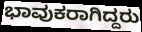
ಭಾವುಕರಾಗಿದ್ದರು